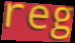
reg